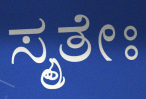
ಸ್ಮೃತೇಃ